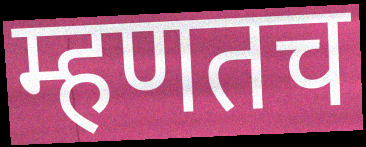
म्हणतच